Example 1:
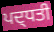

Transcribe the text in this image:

ਪਦ੍ਧਤੀ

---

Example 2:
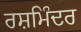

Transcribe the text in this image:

ਰਸ਼ਮਿੰਦਰ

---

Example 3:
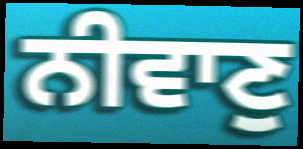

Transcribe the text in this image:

ਨੀਵਾਣੁ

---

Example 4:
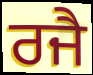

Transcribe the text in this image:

ਰਜੈ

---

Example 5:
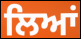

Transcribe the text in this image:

ਲਿਆਂ